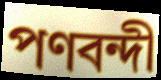
পণবন্দী